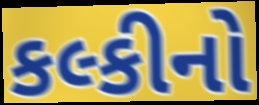
કલ્કીનો